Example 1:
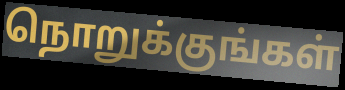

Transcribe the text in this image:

நொறுக்குங்கள்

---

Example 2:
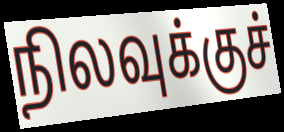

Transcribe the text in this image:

நிலவுக்குச்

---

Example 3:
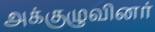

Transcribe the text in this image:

அக்குழுவினர்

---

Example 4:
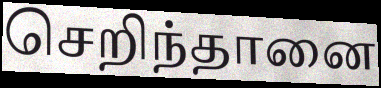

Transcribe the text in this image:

செறிந்தானை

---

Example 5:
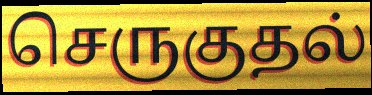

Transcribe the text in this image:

செருகுதல்